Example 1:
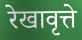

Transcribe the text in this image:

रेखावृत्ते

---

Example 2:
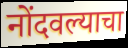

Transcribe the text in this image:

नोंदवल्याचा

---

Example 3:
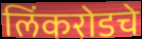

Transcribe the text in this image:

लिंकरोडचे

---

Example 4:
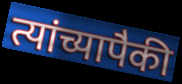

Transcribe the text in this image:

त्यांच्यापैकी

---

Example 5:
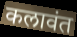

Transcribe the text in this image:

कलावंत